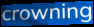
crowning